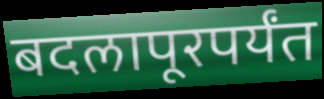
बदलापूरपर्यंत